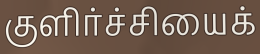
குளிர்ச்சியைக்